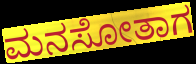
ಮನಸೋತಾಗ